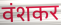
वंशकर